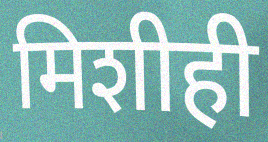
मिशीही